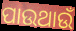
ପାଉଥାଉଁ